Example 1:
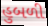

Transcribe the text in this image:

હુબળી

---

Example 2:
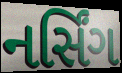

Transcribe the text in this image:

નર્સિંગ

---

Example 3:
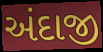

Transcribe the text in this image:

અંદાજી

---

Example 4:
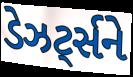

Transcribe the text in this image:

ડેઝર્ટ્સને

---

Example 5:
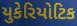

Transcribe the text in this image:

યુકેરિયોટિક